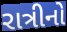
રાત્રીનો